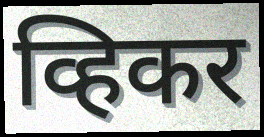
व्हिकर